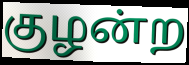
குழன்ற